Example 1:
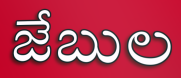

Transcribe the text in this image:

జేబుల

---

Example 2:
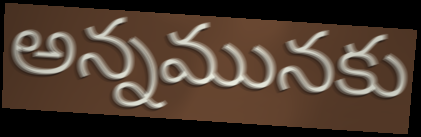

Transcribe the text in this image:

అన్నమునకు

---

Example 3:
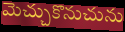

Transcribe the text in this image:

మెచ్చుకొనుచును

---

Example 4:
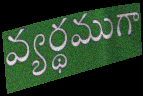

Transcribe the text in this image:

వ్యర్థముగా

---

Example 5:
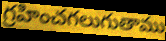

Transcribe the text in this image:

గ్రహించగలుగుతాము